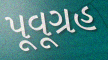
પૂવૂગ્રહ